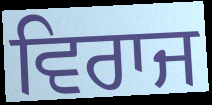
ਵਿਰਾਜ